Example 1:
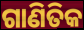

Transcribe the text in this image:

ଗାଣିତିକ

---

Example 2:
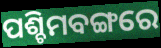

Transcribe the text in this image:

ପଶ୍ଚିମବଙ୍ଗରେ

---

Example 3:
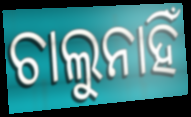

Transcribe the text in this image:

ଚାଲୁନାହିଁ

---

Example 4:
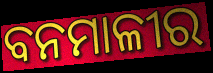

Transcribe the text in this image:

ବନମାଳୀର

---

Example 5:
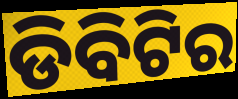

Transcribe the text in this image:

ଡିବିଟିର